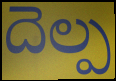
దెల్ప